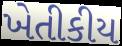
ખેતીકીય